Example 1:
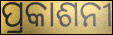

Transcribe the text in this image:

ପ୍ରକାଶନୀ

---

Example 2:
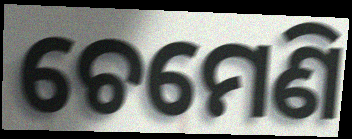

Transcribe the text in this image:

ଚେମେଣି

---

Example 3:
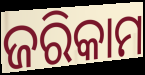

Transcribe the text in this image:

ଜରିକାମ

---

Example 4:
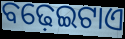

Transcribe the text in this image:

ବଢ଼େଇଟାଏ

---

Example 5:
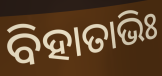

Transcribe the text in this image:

ବିହାତାଭିଃ